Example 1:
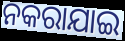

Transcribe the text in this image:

ନକରାଯାଇ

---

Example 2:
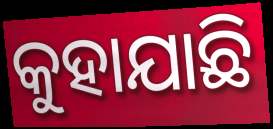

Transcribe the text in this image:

କୁହାଯାଛି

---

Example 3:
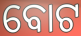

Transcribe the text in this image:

ବୋଟ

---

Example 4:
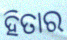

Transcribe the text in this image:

ହିତାର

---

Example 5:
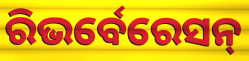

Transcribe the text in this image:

ରିଭର୍ବେରେସନ୍